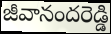
జీవానందరెడ్డి